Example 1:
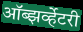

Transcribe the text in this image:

ऑब्झर्व्हेटरी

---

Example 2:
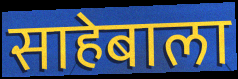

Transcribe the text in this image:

साहेबाला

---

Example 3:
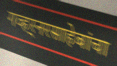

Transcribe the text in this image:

गव्हर्नरसाहेबांचा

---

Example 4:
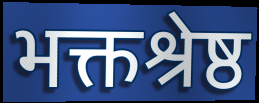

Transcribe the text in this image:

भक्तश्रेष्ठ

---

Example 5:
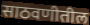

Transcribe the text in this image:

साठवणीतील